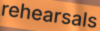
rehearsals